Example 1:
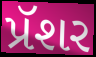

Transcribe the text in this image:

પ્રૅશર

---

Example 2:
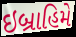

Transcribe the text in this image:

ઇબ્રાહિમે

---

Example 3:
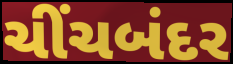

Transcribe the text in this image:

ચીંચબંદર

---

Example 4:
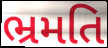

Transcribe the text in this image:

ભ્રમતિ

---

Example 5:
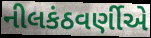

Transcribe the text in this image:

નીલકંઠવર્ણીએ